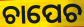
ଚାପେଚ